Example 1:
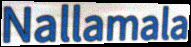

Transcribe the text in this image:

Nallamala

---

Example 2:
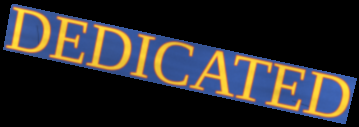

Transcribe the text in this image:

DEDICATED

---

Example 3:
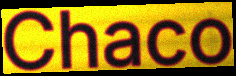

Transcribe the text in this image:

Chaco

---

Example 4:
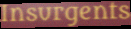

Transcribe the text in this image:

Insurgents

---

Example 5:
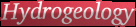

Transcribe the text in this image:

Hydrogeology